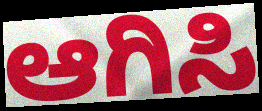
ಆಗಿಸಿ